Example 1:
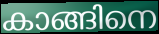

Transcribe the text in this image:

കാങ്ങിനെ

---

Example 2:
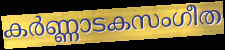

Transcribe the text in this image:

കർണ്ണാടകസംഗീത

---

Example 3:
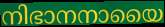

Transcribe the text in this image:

നിഭാനനായൈ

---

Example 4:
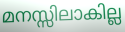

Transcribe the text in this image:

മനസ്സിലാകില്ല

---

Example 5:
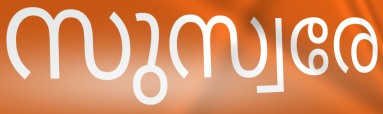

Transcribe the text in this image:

സുസ്വരേ